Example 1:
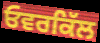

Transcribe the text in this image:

ਓਵਰਕਿੱਲ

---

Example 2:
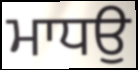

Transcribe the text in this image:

ਮਾਧਉ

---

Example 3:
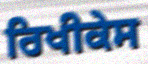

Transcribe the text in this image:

ਰਿਖੀਕੇਸ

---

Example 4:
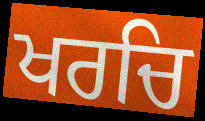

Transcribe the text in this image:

ਖਰਚਿ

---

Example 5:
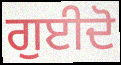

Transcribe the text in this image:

ਗੁਈਦੋ